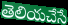
తెలియచేసే